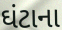
ઘંટાના